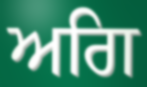
ਅਗਿ